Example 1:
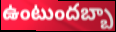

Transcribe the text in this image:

ఉంటుందబ్బా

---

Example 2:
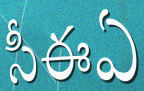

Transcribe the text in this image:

సీఈఏ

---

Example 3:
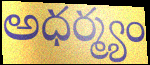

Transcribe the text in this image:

అధర్మ్యం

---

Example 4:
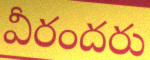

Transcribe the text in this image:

వీరందరు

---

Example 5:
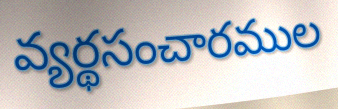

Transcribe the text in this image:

వ్యర్థసంచారముల